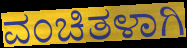
ವಂಚಿತಳಾಗಿ